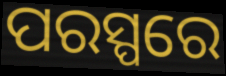
ପରସ୍ପରେ